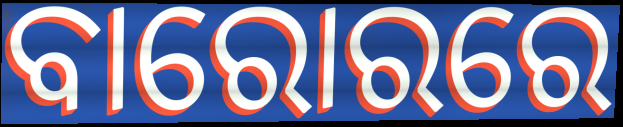
ବାରୋରରେ